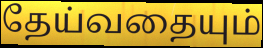
தேய்வதையும்